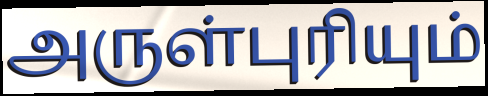
அருள்புரியும்